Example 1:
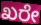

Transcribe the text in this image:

ಖರೇ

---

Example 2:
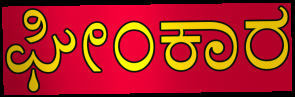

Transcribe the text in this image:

ಘೀಂಕಾರ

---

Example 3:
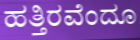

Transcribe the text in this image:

ಹತ್ತಿರವೆಂದೂ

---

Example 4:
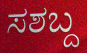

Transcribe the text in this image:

ಸಶಬ್ದ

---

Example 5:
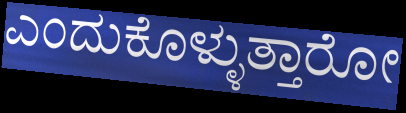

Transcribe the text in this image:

ಎಂದುಕೊಳ್ಳುತ್ತಾರೋ